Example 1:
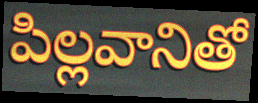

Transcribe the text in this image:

పిల్లవానితో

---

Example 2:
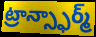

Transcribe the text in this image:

ట్రాన్స్ఫార్మ్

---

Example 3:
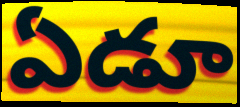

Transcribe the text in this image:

ఏడూ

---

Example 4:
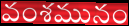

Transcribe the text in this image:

వంశమునం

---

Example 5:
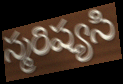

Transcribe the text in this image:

స్మరిష్యసి